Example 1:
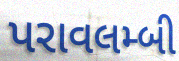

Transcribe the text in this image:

પરાવલમ્બી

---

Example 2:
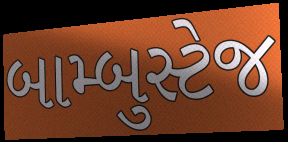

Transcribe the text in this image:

બામ્બુસ્ટેજ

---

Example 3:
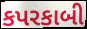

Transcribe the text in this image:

કપરકાબી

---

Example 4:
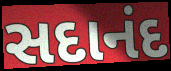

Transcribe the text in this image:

સદાનંદ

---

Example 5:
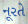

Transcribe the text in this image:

નૂરતે